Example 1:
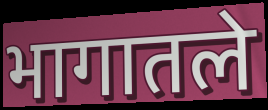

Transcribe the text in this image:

भागातले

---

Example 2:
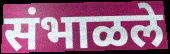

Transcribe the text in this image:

संभाळले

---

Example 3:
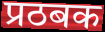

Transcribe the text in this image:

प्रठबक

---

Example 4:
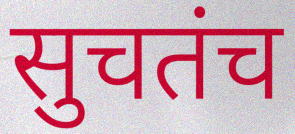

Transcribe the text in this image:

सुचतंच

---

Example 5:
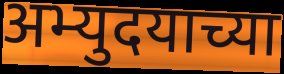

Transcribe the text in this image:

अभ्युदयाच्या